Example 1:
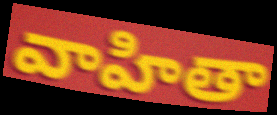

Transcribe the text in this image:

వాహితా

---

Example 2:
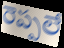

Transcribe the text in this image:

రెప్పలే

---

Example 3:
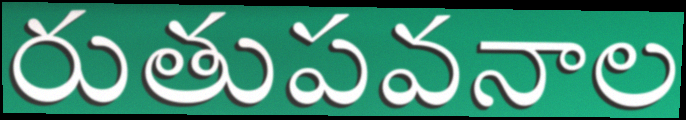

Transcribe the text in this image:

రుతుపవనాల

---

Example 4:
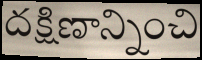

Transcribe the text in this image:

దక్షిణాన్నించి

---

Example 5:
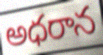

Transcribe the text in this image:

అధరాన